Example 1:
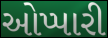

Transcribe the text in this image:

ઓપ્પારી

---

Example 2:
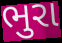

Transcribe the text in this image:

ભુરા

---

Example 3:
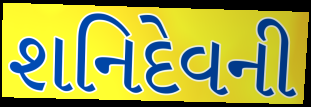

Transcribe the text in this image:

શનિદેવની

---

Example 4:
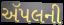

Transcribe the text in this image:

ઍપલની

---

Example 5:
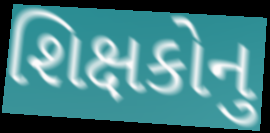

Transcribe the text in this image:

શિક્ષકોનુ